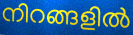
നിറങ്ങളിൽ